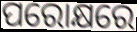
ପରୋକ୍ଷରେ